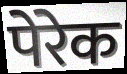
पेरेक